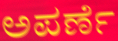
ಅಪರ್ಣೆ